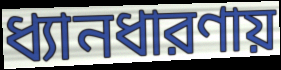
ধ্যানধারণায়